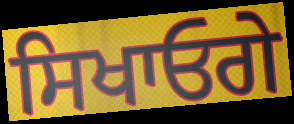
ਸਿਖਾਓਗੇ